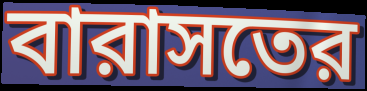
বারাসতের